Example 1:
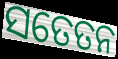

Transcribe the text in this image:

ସତେତନ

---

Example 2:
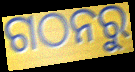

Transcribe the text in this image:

ଗଠନରୁ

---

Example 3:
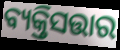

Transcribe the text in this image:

ବ୍ୟକ୍ତିସତ୍ତାର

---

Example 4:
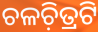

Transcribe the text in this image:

ଚଳଚ଼ିତ୍ରଟି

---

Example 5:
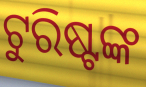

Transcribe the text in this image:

ଟୁରିଷ୍ଟଙ୍କ